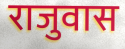
राजुवास